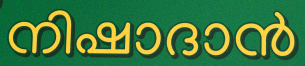
നിഷാദാൻ